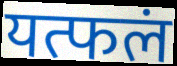
यत्फलं